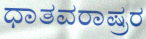
ಧಾತವರಾಷ್ರರ